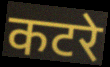
कटरे